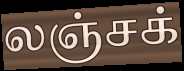
லஞ்சக்